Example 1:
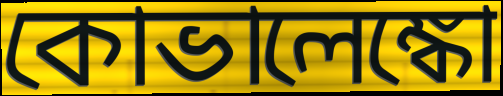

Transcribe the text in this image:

কোভালেঙ্কো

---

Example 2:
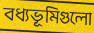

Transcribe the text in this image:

বধ্যভূমিগুলো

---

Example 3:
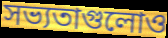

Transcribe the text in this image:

সভ্যতাগুলোও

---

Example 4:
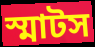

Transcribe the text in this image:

স্মাটস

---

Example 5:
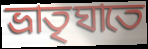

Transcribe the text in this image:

ভ্রাতৃঘাতে